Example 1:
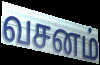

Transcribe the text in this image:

வசனம்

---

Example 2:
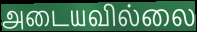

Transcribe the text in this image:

அடையவில்லை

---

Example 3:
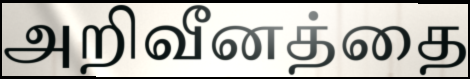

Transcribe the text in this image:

அறிவீனத்தை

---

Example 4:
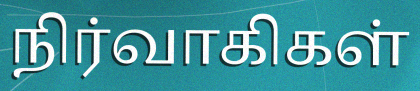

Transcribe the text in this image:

நிர்வாகிகள்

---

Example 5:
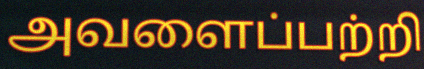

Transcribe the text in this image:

அவளைப்பற்றி